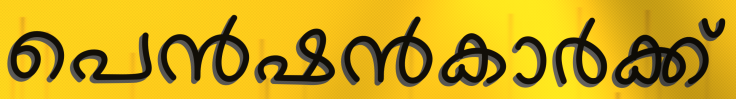
പെൻഷൻകാർക്ക്